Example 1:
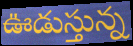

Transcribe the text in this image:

ఊడుస్తున్న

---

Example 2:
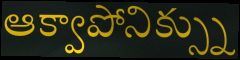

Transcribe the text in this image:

ఆక్వాపోనిక్స్ను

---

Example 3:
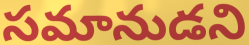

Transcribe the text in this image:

సమానుడని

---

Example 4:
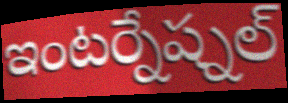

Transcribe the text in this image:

ఇంటర్నేష్నల్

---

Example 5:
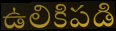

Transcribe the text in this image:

ఉలికిపడి